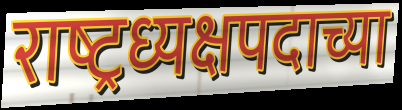
राष्ट्रध्यक्षपदाच्या